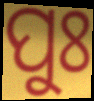
ପୁଃ